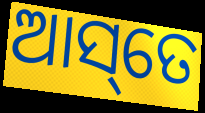
ଆସ୍‌ତେ